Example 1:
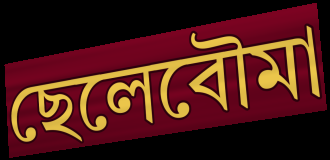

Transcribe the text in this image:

ছেলেবৌমা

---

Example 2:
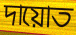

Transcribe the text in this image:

দায়োত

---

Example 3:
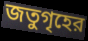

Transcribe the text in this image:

জতুগৃহের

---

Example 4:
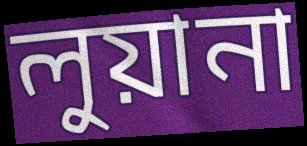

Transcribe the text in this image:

লুয়ানা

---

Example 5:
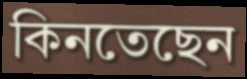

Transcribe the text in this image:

কিনতেছেন